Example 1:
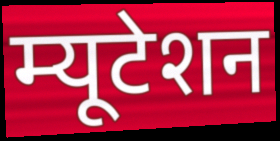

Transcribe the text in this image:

म्यूटेशन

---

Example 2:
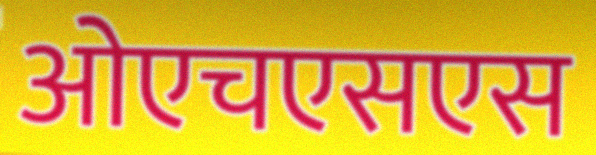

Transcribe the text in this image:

ओएचएसएस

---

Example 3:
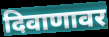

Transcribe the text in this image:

दिवाणावर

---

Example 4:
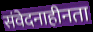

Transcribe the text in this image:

संवेदनाहीनता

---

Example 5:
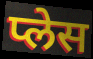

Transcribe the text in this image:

प्लेस